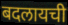
बदलायची